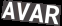
AVAR